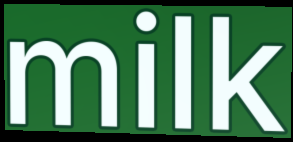
milk